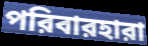
পরিবারহারা